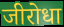
जीरोधा